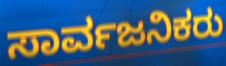
ಸಾರ್ವಜನಿಕರು